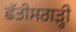
ਛੱਤੀਸਗੜ੍ਹੀ